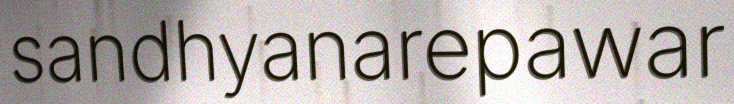
sandhyanarepawar